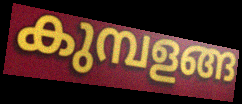
കുമ്പളങ്ങ